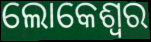
ଲୋକେଶ୍ୱର